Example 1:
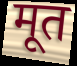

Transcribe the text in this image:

मूत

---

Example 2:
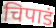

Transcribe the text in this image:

चिपाडं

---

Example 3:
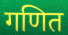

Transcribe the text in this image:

गणित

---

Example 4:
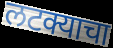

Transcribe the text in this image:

लटक्याचा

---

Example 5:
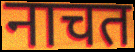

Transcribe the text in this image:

नाचत